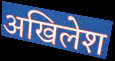
अखिलेश